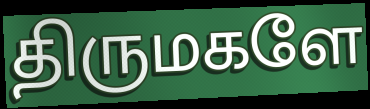
திருமகளே